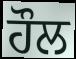
ਹੌਲ